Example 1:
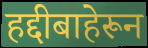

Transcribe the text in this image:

हद्दीबाहेरून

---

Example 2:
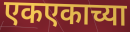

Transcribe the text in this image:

एकएकाच्या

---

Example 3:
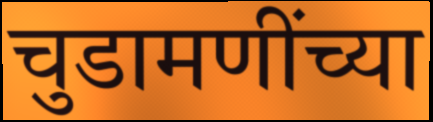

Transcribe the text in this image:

चुडामणींच्या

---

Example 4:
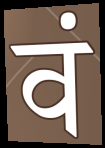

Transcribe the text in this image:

वं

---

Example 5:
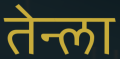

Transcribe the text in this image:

तेन्ला